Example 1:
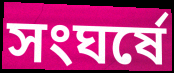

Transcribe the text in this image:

সংঘর্ষে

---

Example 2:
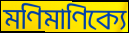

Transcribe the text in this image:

মণিমাণিক্যে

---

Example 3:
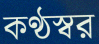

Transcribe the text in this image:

কণ্ঠস্বর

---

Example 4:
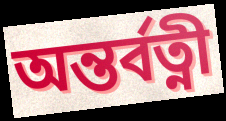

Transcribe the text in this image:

অন্তর্বত্নী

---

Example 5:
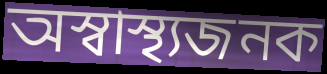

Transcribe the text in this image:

অস্বাস্থ্যজনক